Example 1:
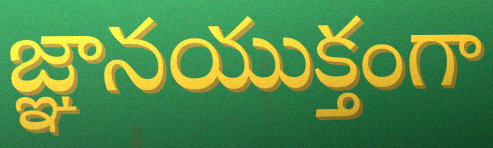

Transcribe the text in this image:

జ్ఞానయుక్తంగా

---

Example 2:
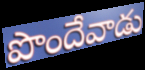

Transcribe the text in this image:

పొందేవాడు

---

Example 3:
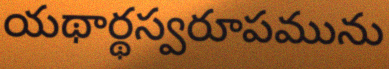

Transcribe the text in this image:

యథార్థస్వరూపమును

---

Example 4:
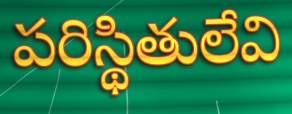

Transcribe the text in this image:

పరిస్థితులేవి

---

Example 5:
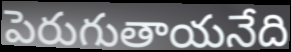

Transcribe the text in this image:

పెరుగుతాయనేది